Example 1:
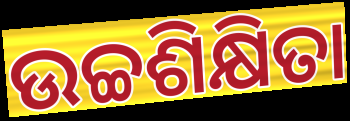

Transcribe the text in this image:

ଉଚ୍ଚଶିକ୍ଷିତା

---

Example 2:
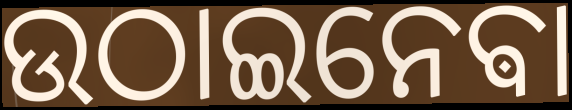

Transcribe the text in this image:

ଉଠାଇନେଵା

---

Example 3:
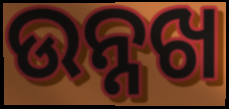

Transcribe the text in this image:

ଉନ୍ନଖ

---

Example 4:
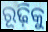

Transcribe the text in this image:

ରୂଢ଼ିକୁ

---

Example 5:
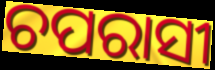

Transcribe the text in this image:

ଚପରାସୀ